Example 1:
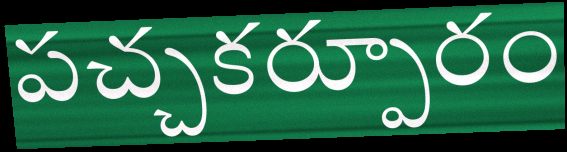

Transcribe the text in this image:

పచ్చకర్పూరం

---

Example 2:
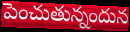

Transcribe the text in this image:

పెంచుతున్నందున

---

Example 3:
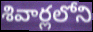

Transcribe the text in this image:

శివార్లలోని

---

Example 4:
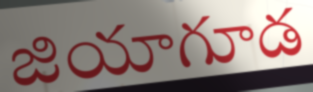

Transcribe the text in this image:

జియాగూడ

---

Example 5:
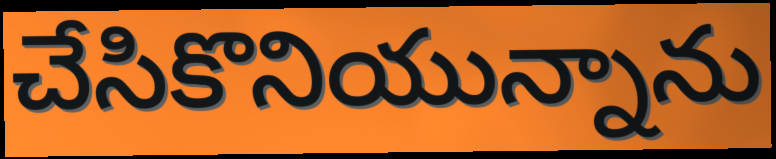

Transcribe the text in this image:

చేసికొనియున్నాను